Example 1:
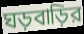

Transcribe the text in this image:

ঘড়বাড়ির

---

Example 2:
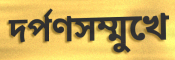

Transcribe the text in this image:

দর্পণসম্মুখে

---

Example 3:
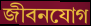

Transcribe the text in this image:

জীবনযোগ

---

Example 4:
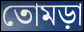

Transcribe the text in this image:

তোমড়া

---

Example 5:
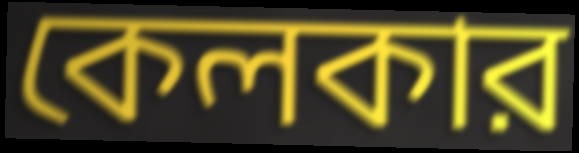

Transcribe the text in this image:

কেলকার